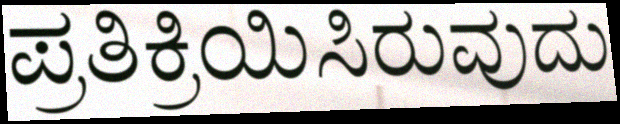
ಪ್ರತಿಕ್ರಿಯಿಸಿರುವುದು